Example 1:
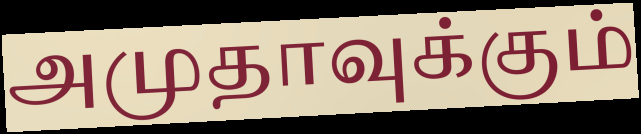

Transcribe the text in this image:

அமுதாவுக்கும்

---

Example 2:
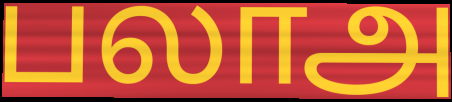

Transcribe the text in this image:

பலாஅ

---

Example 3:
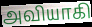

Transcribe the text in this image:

அவியாகி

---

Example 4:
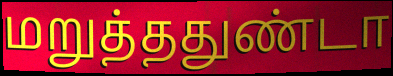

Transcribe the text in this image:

மறுத்ததுண்டா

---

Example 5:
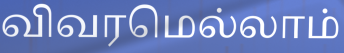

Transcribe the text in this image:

விவரமெல்லாம்